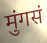
मुंगसं